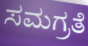
ಸಮಗ್ರತೆ